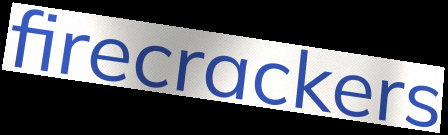
firecrackers